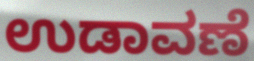
ಉಡಾವಣೆ